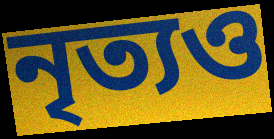
নৃত্যও